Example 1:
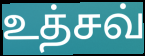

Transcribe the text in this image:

உத்சவ்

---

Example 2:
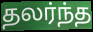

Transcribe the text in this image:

தலர்ந்த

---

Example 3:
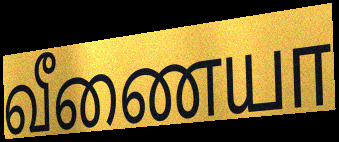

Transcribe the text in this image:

வீணையா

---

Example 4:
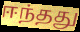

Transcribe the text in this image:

ஈந்தது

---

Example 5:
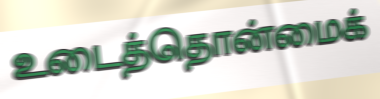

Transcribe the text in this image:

உடைத்தொன்மைக்